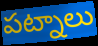
పట్నాలు